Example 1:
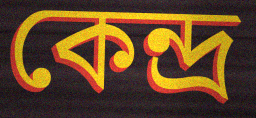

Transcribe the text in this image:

কেন্দ্ৰ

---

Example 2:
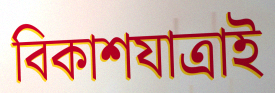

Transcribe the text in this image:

বিকাশযাত্ৰাই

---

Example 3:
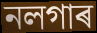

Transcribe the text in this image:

নলগাৰ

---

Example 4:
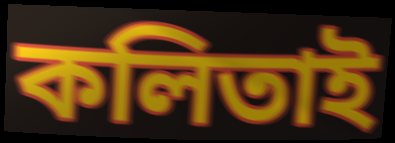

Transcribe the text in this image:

কলিতাই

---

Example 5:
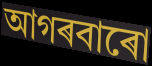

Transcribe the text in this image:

আগৰবাৰো